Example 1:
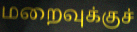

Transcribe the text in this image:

மறைவுக்குச்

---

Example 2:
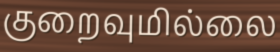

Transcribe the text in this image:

குறைவுமில்லை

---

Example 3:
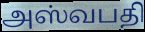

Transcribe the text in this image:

அஸ்வபதி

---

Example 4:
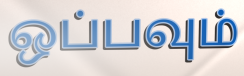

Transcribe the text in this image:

ஒப்பவும்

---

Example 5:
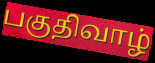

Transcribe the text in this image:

பகுதிவாழ்